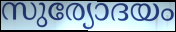
സുര്യോദയം